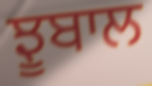
ਝੂਬਾਲ